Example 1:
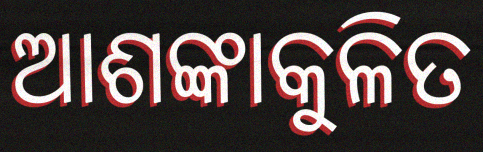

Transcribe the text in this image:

ଆଶଙ୍କାକୁଳିତ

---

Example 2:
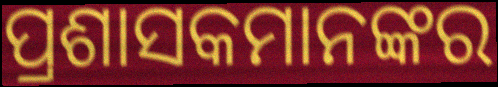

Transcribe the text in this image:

ପ୍ରଶାସକମାନଙ୍କର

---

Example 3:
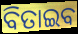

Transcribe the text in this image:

ବିତାଇବ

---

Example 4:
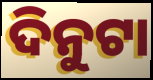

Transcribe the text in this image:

ଦିନୁଟା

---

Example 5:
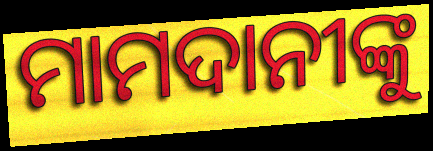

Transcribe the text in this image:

ମାମଦାନୀଙ୍କୁ